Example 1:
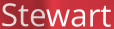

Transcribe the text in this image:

Stewart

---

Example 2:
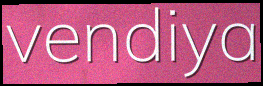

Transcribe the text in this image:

vendiya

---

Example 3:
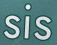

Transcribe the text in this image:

sis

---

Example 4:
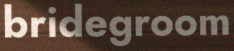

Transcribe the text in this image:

bridegroom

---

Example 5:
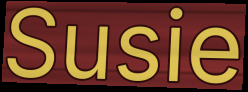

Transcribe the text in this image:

Susie